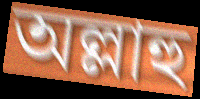
অল্লাহু